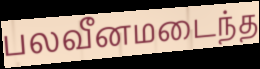
பலவீனமடைந்த